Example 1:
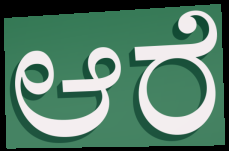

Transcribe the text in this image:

ಆರೆ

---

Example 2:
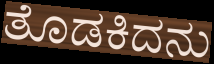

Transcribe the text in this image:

ತೊಡಕಿದನು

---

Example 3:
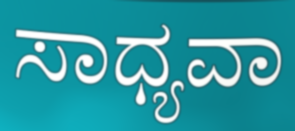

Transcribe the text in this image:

ಸಾಧ್ಯವಾ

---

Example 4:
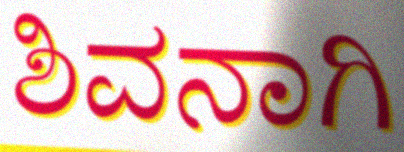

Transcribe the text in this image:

ಶಿವನಾಗಿ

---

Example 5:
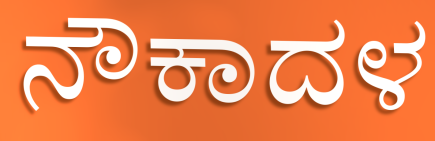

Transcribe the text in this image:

ನೌಕಾದಳ